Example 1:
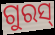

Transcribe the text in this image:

ଗୁରସ୍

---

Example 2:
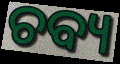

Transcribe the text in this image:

ଚବ୍ୟ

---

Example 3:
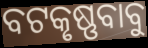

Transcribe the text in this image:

ବଟକୃଷ୍ଣବାବୁ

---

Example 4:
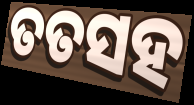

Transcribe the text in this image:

ତତସହ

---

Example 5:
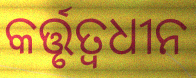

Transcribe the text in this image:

କର୍ତ୍ତୃତ୍ୱଧୀନ